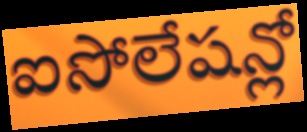
ఐసోలేషన్లో